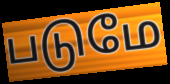
படுமே